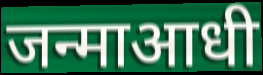
जन्माआधी